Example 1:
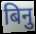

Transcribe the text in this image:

बिनु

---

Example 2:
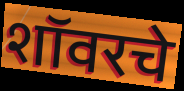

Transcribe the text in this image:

शॉवरचे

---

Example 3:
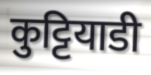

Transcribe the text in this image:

कुट्टियाडी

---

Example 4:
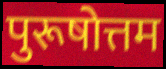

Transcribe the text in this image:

पुरूषोत्तम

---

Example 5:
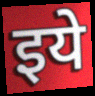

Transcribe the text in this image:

इये